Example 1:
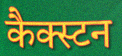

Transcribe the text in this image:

कैक्स्टन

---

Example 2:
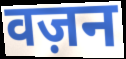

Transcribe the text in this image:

वज़न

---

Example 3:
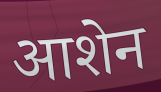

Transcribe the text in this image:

आशेन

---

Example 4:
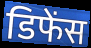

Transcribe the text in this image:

डिफेंस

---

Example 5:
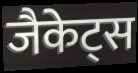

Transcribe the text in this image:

जैकेट्स